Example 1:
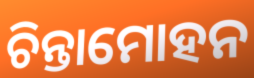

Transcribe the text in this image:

ଚିନ୍ତାମୋହନ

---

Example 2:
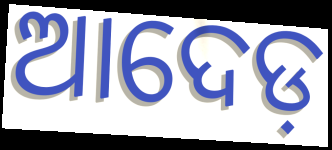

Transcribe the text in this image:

ଆଦେଡ଼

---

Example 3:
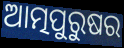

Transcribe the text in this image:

ଆତ୍ମପୁରୁଷର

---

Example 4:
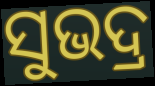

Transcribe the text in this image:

ସୁଭଦ୍ର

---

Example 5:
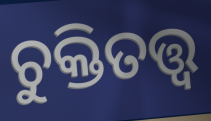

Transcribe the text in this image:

ଚୁକ୍ତିତତ୍ତ୍ଵ